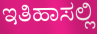
ಇತಿಹಾಸಲ್ಲಿ